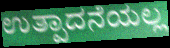
ಉತ್ಪಾದನೆಯಲ್ಲ